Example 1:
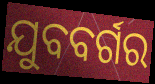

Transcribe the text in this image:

ଯୁବବର୍ଗର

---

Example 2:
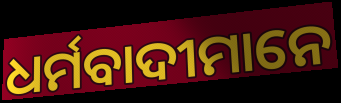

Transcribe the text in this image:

ଧର୍ମବାଦୀମାନେ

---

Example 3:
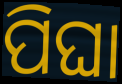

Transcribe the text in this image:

ପିଘା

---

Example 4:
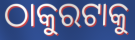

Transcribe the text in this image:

ଠାକୁରଟାକୁ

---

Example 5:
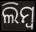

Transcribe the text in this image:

ଲିମ୍ବ